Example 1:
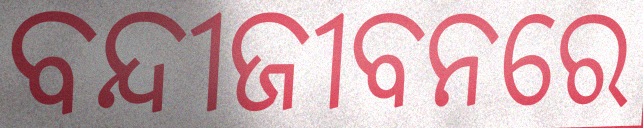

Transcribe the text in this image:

ବନ୍ଦୀଜୀବନରେ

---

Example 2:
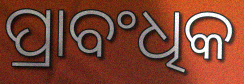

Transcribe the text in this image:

ପ୍ରାବଂଧିକ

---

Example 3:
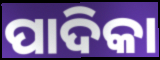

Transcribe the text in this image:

ପାଦିକା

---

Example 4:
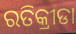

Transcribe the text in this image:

ରତିକ୍ରୀଡା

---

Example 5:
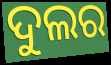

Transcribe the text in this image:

ଦୁଲର